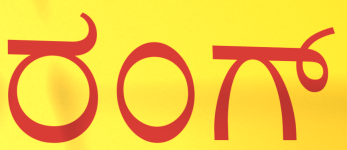
ರಂಗ್